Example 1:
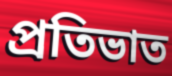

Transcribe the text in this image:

প্ৰতিভাত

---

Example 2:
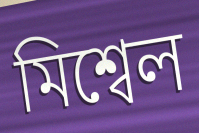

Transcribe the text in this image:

মিশ্বেল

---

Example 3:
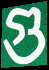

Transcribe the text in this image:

গু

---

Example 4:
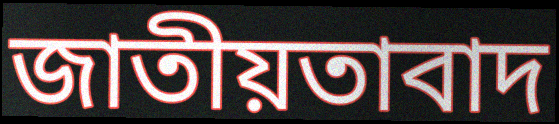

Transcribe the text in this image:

জাতীয়তাবাদ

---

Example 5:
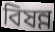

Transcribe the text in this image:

বিষন্ন